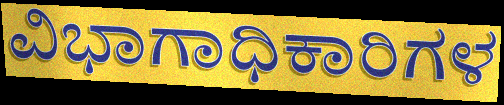
ವಿಭಾಗಾಧಿಕಾರಿಗಳ